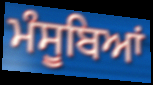
ਮੰਸੂਬਿਆਂ